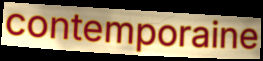
contemporaine